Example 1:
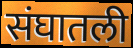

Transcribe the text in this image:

संघातली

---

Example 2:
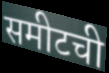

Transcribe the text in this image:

समीटची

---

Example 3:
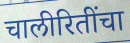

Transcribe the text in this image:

चालीरितींचा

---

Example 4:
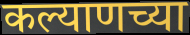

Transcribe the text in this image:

कल्याणच्या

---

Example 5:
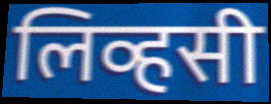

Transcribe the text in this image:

लिव्हसी